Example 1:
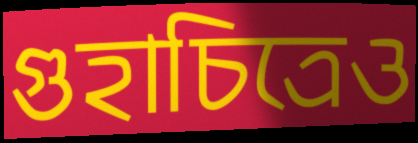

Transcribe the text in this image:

গুহাচিত্রেও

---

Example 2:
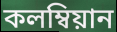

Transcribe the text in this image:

কলম্বিয়ান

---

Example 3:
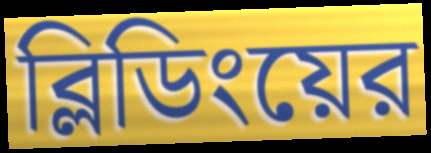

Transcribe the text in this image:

ব্লিডিংয়ের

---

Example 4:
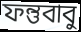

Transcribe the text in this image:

ফন্তুবাবু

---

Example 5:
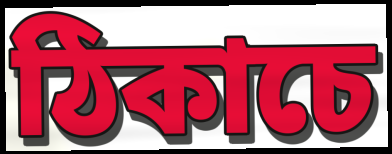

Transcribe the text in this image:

ঠিকাচে